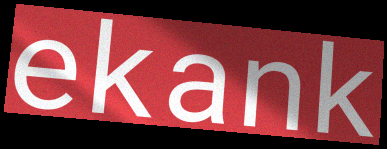
ekank